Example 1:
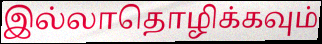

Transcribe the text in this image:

இல்லாதொழிக்கவும்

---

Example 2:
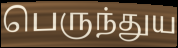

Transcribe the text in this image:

பெருந்துய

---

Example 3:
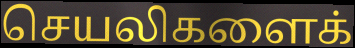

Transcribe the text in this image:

செயலிகளைக்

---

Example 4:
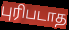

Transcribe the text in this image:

புரிபடாத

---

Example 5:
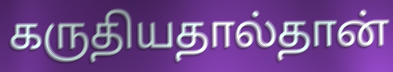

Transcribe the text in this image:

கருதியதால்தான்